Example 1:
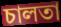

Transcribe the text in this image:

চালতা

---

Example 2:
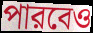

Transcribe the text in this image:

পারবেও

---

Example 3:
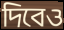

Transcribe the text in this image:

দিবেও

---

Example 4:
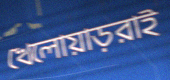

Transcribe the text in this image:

খেলোয়াড়রাই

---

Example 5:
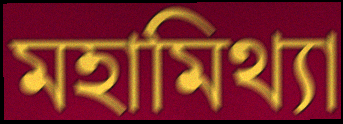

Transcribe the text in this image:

মহামিথ্যা